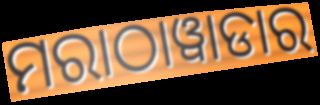
ମରାଠାୱାଡାର